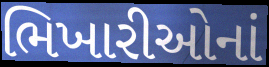
ભિખારીઓનાં